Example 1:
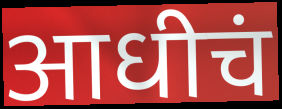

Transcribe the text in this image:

आधीचं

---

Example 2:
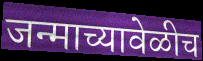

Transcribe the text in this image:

जन्माच्यावेळीच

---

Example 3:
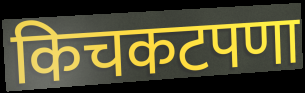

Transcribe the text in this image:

किचकटपणा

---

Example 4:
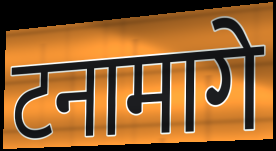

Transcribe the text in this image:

टनामागे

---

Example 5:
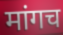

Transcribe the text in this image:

मांगच